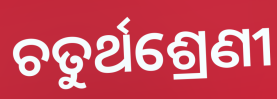
ଚତୁର୍ଥଶ୍ରେଣୀ